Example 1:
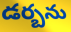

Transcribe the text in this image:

డర్బను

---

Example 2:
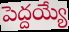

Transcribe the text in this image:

పెద్దయ్యే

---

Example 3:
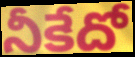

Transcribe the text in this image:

నీకేదో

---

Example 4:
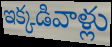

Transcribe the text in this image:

ఇక్కడివాళ్లు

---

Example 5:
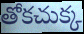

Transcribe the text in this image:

తోకచుక్క